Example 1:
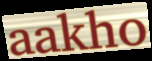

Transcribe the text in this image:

aakho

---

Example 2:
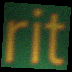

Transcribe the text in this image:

rit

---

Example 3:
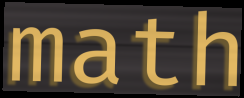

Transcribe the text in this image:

math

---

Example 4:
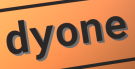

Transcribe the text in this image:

dyone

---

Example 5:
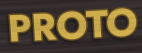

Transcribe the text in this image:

PROTO